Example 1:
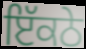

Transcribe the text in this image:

ਇੱਕਠੇ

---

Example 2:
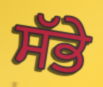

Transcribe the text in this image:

ਸੱਭੇ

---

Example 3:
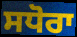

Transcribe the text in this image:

ਸਧੋਰਾ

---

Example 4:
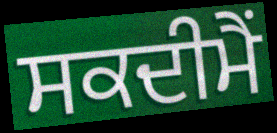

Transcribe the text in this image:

ਸਕਦੀਮੈਂ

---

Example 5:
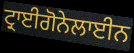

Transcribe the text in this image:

ਟ੍ਰਾਈਗੋਨੇਲਾਈਨ